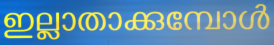
ഇല്ലാതാക്കുമ്പോൾ